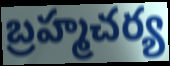
బ్రహ్మచర్య